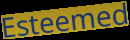
Esteemed